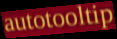
autotooltip